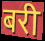
बरी